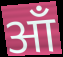
आँ